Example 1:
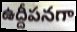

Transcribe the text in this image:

ఉద్దీపనగా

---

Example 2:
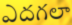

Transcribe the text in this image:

ఎదగలా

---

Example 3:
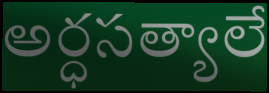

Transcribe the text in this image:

అర్ధసత్యాలే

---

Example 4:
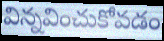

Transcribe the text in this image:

విన్నవించుకోవడం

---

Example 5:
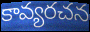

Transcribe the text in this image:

కావ్యరచన